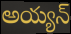
అయ్యన్